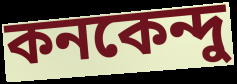
কনকেন্দু